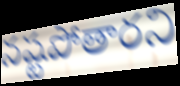
నష్టపోతారని